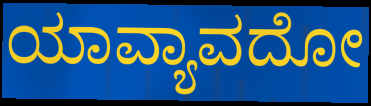
ಯಾವ್ಯಾವದೋ